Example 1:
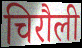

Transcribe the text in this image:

चिरौली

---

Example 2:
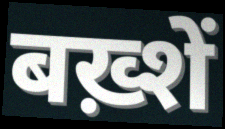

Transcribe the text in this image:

बख़्शें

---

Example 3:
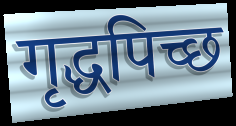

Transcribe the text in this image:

गृद्धपिच्छ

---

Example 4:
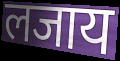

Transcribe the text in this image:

लजाय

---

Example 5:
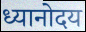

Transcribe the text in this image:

ध्यानोदय